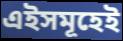
এইসমূহেই